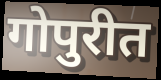
गोपुरीत